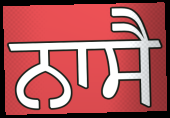
ਨਾਸੈ